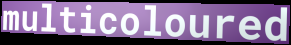
multicoloured